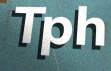
Tph